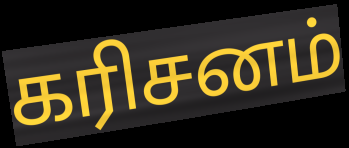
கரிசனம்